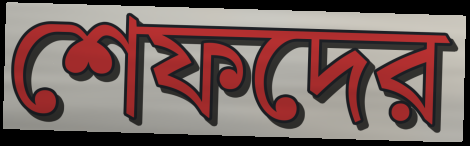
শেফদের